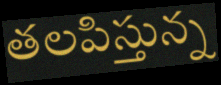
తలపిస్తున్న